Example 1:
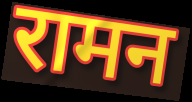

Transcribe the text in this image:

रामन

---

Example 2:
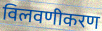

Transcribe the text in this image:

विलवणीकरण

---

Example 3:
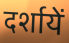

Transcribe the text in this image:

दर्शायें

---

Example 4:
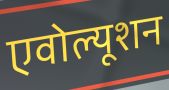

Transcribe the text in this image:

एवोल्यूशन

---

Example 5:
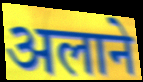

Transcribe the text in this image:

अलाने